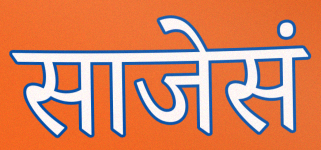
साजेसं